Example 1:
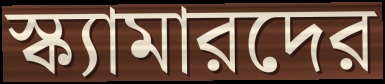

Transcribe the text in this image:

স্ক্যামারদের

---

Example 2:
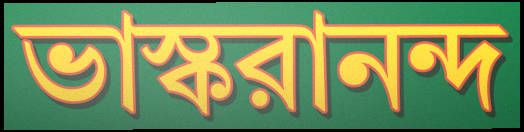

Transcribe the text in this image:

ভাস্করানন্দ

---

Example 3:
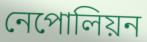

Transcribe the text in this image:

নেপোলিয়ন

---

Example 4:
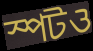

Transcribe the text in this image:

স্পটও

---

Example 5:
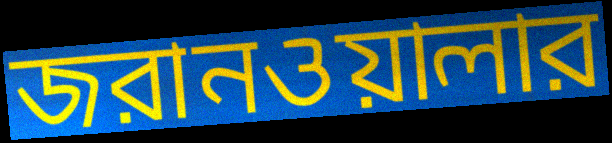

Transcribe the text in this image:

জরানওয়ালার